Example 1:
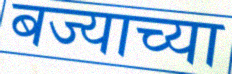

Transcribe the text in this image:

बज्याच्या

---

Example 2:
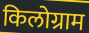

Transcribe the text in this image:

किलोग्राम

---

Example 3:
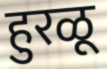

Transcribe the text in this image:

हुरळू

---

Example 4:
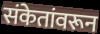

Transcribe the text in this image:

संकेतांवरून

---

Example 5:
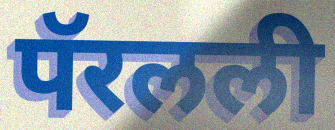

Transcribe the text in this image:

पॅरलली